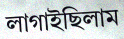
লাগাইছিলাম